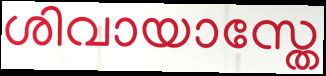
ശിവായാസ്തേ